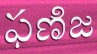
ఫణిజ